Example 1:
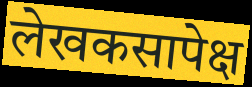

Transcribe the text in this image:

लेखकसापेक्ष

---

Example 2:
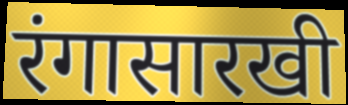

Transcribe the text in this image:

रंगासारखी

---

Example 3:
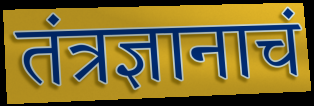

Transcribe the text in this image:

तंत्रज्ञानाचं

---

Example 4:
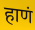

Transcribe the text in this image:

हाणं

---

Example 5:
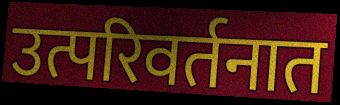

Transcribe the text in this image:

उत्परिवर्तनात